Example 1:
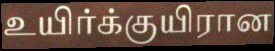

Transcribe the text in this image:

உயிர்க்குயிரான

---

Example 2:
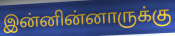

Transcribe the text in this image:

இன்னின்னாருக்கு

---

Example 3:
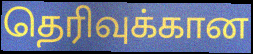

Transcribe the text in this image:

தெரிவுக்கான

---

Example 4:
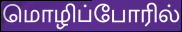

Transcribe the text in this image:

மொழிப்போரில்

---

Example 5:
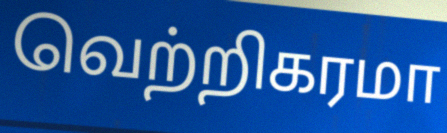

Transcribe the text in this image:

வெற்றிகரமா